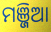
ମଞ୍ଜିଆ